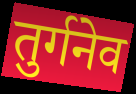
तुर्गनेव